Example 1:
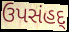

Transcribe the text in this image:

ઉપસંહદ્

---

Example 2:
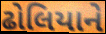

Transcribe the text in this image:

ઢોલિયાને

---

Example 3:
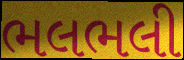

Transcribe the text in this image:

ભલભલી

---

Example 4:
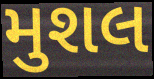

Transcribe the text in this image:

મુશલ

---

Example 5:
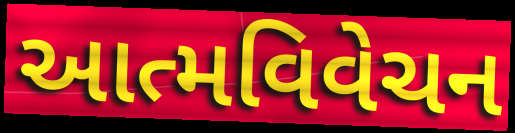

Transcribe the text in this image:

આત્મવિવેચન